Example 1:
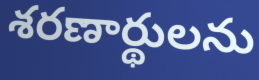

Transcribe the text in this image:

శరణార్థులను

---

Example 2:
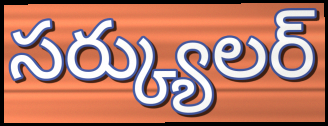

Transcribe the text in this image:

సర్క్యులర్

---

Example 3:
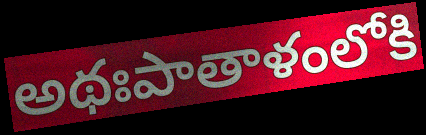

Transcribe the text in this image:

అథఃపాతాళంలోకి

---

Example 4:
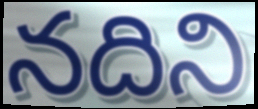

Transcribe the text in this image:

నదిని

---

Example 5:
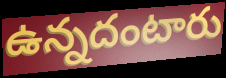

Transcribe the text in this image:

ఉన్నదంటారు